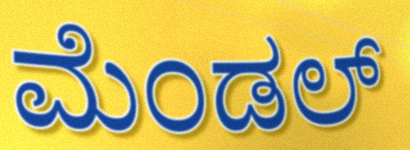
ಮೆಂಡಲ್